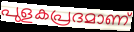
പുളകപ്രദമാണ്